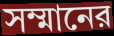
সম্মানের